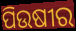
ପିଉଷୀର